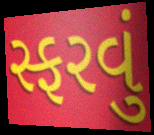
સ્ફરવું